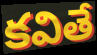
కవితే